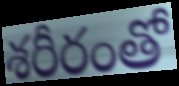
శరీరంతో